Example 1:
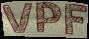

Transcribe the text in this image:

VPF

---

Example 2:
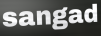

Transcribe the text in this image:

sangad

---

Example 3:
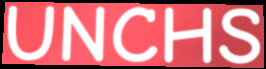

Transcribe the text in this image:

UNCHS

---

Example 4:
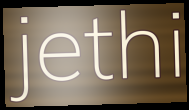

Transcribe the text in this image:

jethi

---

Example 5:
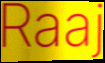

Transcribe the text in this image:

Raaj